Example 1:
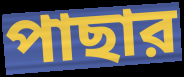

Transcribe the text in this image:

পাছার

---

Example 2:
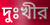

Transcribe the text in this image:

দুঃখীর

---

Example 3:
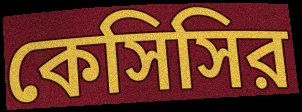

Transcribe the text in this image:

কেসিসির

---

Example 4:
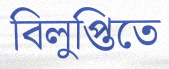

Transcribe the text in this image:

বিলুপ্তিতে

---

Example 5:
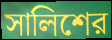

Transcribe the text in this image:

সালিশের